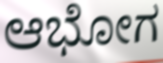
ಆಭೋಗ